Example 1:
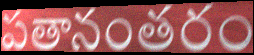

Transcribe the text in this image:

పతానంతరం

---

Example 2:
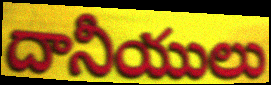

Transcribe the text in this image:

దానీయులు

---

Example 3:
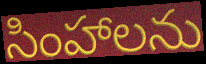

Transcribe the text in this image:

సింహాలను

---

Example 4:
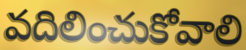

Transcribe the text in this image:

వదిలించుకోవాలి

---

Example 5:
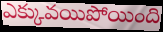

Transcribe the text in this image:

ఎక్కువయిపోయింది